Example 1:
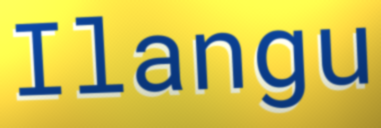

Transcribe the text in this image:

Ilangu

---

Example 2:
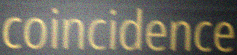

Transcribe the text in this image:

coincidence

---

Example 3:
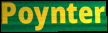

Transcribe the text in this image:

Poynter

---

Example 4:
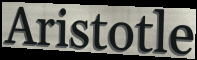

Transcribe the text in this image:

Aristotle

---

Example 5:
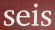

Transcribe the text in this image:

seis